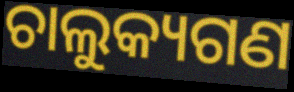
ଚାଲୁକ୍ୟଗଣ